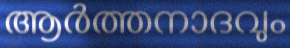
ആർത്തനാദവും